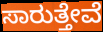
ಸಾರುತ್ತೇವೆ